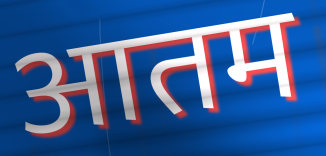
आतम